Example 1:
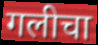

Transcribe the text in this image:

गलीचा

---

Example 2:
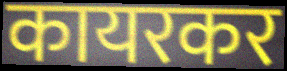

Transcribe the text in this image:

कायरकर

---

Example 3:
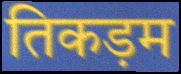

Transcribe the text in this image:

तिकड़म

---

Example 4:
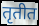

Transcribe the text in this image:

तृतीत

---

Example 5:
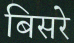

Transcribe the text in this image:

बिसरे